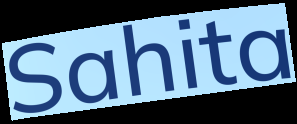
Sahita